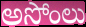
అసోంలు